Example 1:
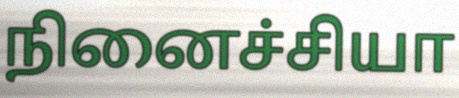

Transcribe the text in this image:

நினைச்சியா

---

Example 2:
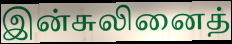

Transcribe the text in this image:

இன்சுலினைத்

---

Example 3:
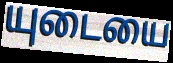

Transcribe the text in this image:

யுடையை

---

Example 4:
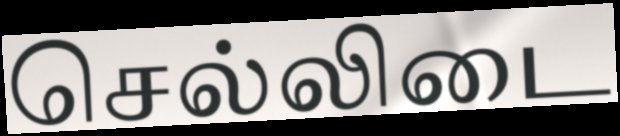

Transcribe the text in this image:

செல்லிடை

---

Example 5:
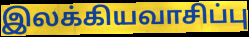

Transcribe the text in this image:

இலக்கியவாசிப்பு